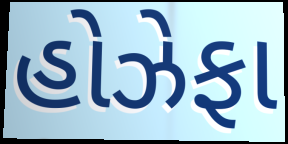
હોઝેફા